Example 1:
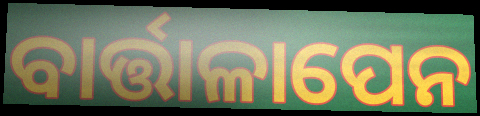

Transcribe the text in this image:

ବାର୍ତ୍ତାଳାପେନ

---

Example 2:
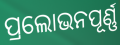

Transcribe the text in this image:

ପ୍ରଲୋଭନପୂର୍ଣ୍ଣ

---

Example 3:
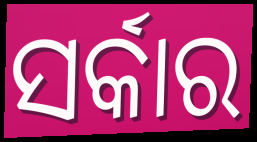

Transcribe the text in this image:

ସର୍କାର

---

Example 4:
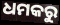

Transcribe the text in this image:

ଧମକରୁ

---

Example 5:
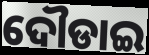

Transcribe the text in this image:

ଦୌଡାଇ